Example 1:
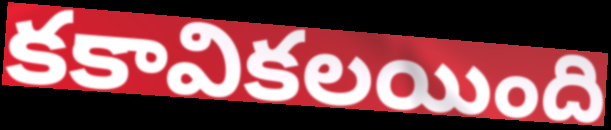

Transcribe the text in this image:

కకావికలయింది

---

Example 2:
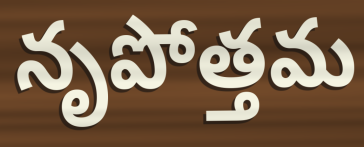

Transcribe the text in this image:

నృపోత్తమ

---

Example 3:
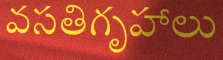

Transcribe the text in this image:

వసతిగృహాలు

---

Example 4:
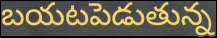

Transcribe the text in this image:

బయటపెడుతున్న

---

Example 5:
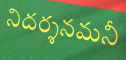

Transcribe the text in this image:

నిదర్శనమనీ